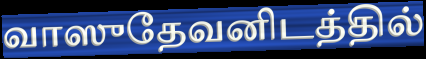
வாஸுதேவனிடத்தில்